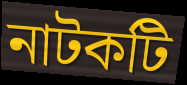
নাটকটি